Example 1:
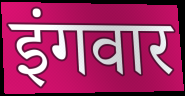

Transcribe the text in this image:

इंगवार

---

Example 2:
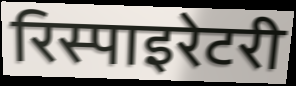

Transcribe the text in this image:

रिस्पाइरेटरी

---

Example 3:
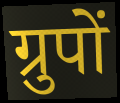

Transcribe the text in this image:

ग्रुपों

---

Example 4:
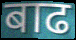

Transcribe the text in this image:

बाढ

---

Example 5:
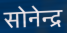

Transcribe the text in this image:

सोनेन्द्र